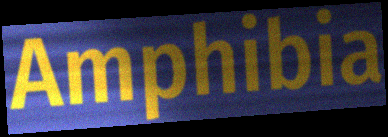
Amphibia